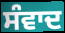
ਸੰਵਾਦ